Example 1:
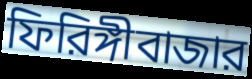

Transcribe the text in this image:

ফিরিঙ্গীবাজার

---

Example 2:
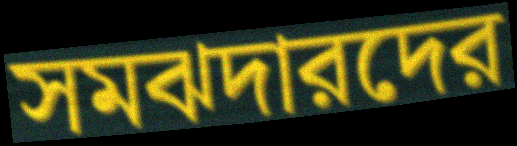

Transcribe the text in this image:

সমঝদারদের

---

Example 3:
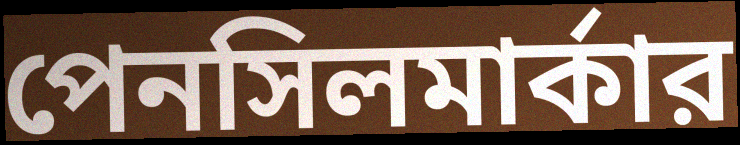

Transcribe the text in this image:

পেনসিলমার্কার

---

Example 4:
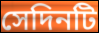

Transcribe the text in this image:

সেদিনটি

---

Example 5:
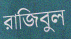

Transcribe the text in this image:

রাজিবুল